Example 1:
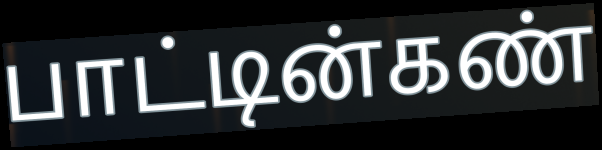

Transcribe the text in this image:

பாட்டின்கண்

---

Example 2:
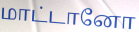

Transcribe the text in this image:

மாட்டானோ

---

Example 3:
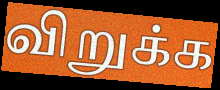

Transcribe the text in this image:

விறுக்க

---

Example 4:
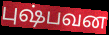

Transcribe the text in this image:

புஷ்பவன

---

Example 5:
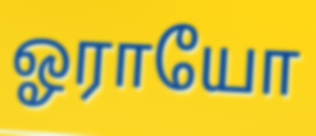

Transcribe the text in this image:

ஓராயோ